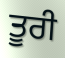
ਤੂਰੀ